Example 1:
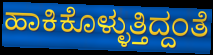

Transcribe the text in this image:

ಹಾಕಿಕೊಳ್ಳುತ್ತಿದ್ದಂತೆ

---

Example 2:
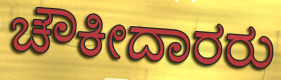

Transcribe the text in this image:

ಚೌಕೀದಾರರು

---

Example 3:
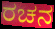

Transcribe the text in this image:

ರಚನ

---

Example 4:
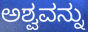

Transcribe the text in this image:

ಅಶ್ವವನ್ನು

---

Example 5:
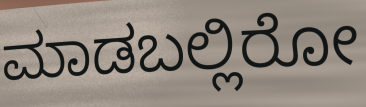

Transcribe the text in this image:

ಮಾಡಬಲ್ಲಿರೋ